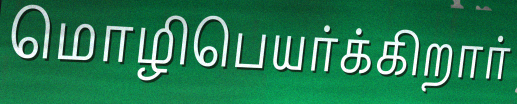
மொழிபெயர்க்கிறார்